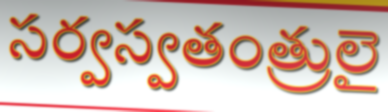
సర్వస్వతంత్రులై